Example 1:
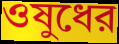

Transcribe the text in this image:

ওষুধের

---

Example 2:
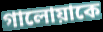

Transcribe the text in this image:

গালোয়াকে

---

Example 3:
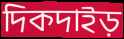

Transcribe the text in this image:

দিকদাইড়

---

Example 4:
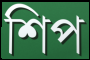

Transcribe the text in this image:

শিপ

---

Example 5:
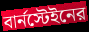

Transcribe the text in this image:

বার্নস্টেইনের